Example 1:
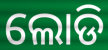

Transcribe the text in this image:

ଲୋଡି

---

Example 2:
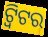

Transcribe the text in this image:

ଟ୍ୱିଟର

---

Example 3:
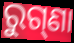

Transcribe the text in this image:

ରୁଗ୍‌ଣା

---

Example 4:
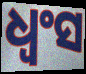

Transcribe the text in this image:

ଧ୍ୱଂସ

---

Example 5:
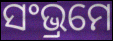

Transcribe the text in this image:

ସଂଭ୍ରମେ